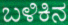
ಬಳಿಕಿನ